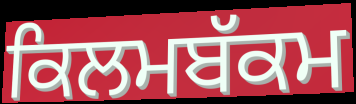
ਕਿਲਮਬੱਕਮ